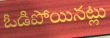
ఓడిపోయినట్లు